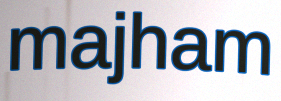
majham